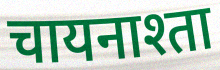
चायनाश्ता